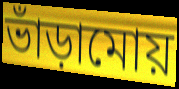
ভাঁড়ামোয়